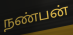
நண்பன்